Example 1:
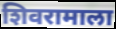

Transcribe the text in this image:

शिवरामाला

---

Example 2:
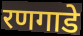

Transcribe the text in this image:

रणगाडे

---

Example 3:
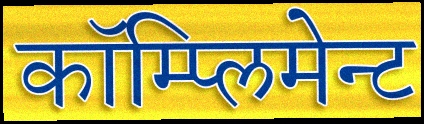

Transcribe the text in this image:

कॉम्प्लिमेन्ट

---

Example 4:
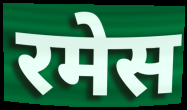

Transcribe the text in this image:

रमेस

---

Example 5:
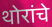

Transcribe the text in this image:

थोरांचे